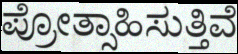
ಪ್ರೋತ್ಸಾಹಿಸುತ್ತಿವೆ